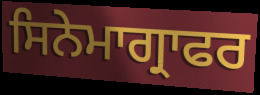
ਸਿਨੇਮਾਗ੍ਰਾਫਰ